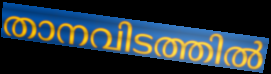
താനവിടത്തിൽ